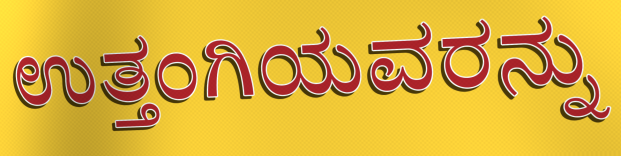
ಉತ್ತಂಗಿಯವರನ್ನು